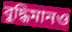
বুদ্ধিমানও